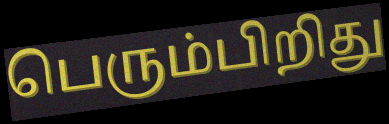
பெரும்பிறிது